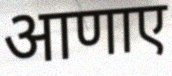
आणाए